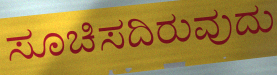
ಸೂಚಿಸದಿರುವುದು